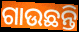
ଗାଉଛନ୍ତି